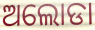
ଅଲୋଡା